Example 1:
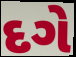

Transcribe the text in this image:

દગે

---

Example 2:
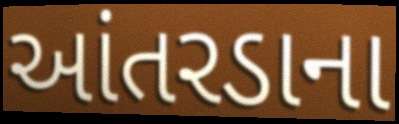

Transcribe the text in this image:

આંતરડાના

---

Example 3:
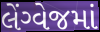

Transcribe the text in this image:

લેંગ્વેજમાં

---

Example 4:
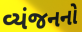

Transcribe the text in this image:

વ્યંજનનો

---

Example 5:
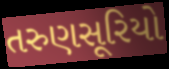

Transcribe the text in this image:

તરુણસૂરિયો